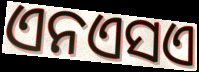
ଏନଏସଏ